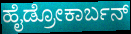
ಹೈಡ್ರೋಕಾರ್ಬನ್